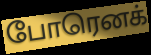
போரெனக்